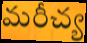
మరీచ్య